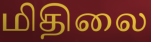
மிதிலை